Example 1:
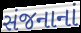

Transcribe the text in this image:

સંજનાનાં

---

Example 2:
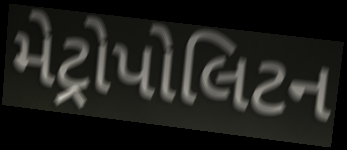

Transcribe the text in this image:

મેટ્રોપોલિટન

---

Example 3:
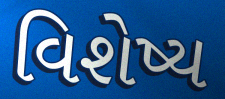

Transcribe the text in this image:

વિશેષ્ય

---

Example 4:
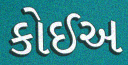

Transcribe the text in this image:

કોઈઅ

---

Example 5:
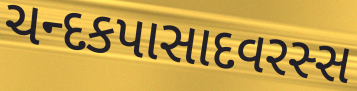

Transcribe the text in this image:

ચન્દકપાસાદવરસ્સ